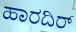
ಹಾರದಿರ್